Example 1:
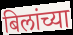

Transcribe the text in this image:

बिलांच्या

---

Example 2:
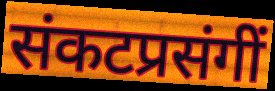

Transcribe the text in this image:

संकटप्रसंगीं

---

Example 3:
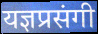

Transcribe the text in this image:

यज्ञप्रसंगी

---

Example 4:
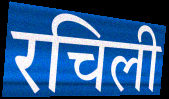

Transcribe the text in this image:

रचिली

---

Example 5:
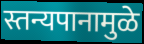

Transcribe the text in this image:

स्तन्यपानामुळे